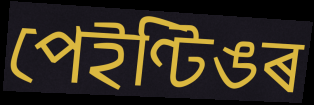
পেইণ্টিঙৰ